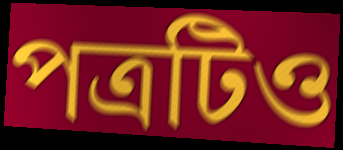
পত্রটিও